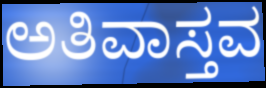
ಅತಿವಾಸ್ತವ